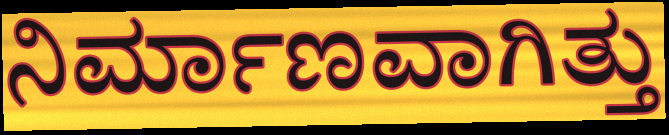
ನಿರ್ಮಾಣವಾಗಿತ್ತು